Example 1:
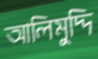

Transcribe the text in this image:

আলিমুদ্দি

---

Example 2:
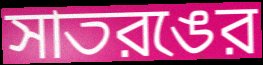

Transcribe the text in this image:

সাতরঙের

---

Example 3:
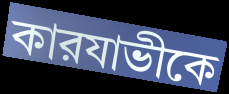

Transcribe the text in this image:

কারযাভীকে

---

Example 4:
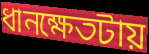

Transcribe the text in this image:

ধানক্ষেতটায়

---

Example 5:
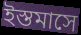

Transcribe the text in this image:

ইস্তমাসে